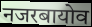
नजरबायोव